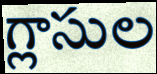
గ్లాసుల